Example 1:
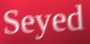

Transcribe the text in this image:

Seyed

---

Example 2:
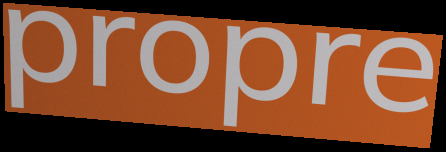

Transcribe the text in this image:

propre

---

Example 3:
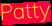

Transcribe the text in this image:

Patty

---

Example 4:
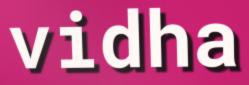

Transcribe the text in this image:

vidha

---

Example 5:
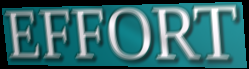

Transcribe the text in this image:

EFFORT